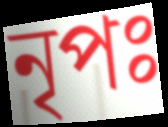
নৃপঃ